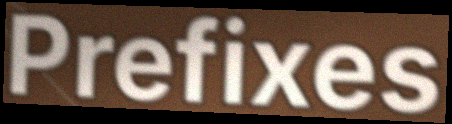
Prefixes